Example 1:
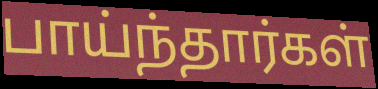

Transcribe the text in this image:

பாய்ந்தார்கள்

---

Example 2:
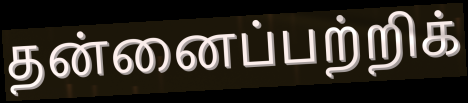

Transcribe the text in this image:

தன்னைப்பற்றிக்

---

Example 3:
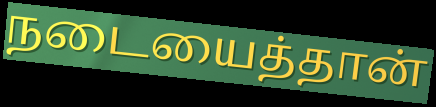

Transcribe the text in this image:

நடையைத்தான்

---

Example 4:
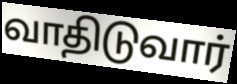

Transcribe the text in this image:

வாதிடுவார்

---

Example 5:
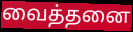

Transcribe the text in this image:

வைத்தனை